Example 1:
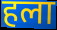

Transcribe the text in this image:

हला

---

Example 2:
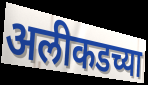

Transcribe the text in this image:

अलीकडच्या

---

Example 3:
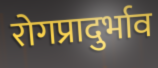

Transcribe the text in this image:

रोगप्रादुर्भाव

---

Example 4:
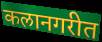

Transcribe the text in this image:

कलानगरीत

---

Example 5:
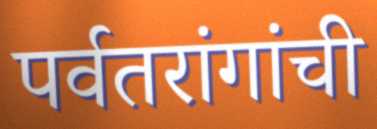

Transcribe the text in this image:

पर्वतरांगांची